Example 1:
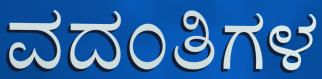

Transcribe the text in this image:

ವದಂತಿಗಳ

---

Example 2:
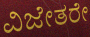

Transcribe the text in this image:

ವಿಜೇತರೇ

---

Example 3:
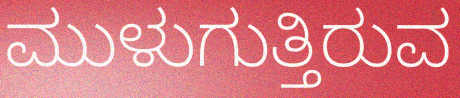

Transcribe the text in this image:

ಮುಳುಗುತ್ತಿರುವ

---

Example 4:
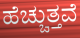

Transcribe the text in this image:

ಹೆಚ್ಚುತ್ತವೆ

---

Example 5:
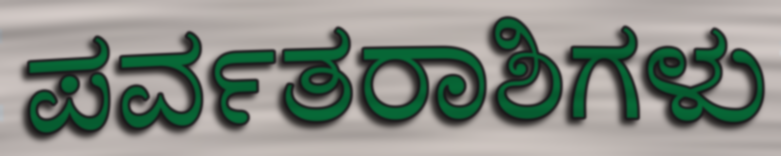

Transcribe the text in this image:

ಪರ್ವತರಾಶಿಗಳು